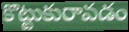
కొట్టుకురావడం